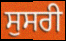
ਸੁਸਰੀ